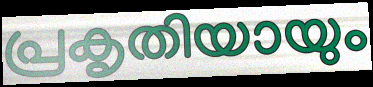
പ്രകൃതിയായും